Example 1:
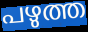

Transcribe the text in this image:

പഴുത്ത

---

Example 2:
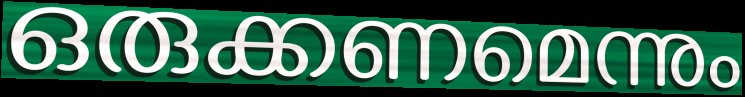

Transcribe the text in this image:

ഒരുക്കണമെന്നും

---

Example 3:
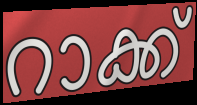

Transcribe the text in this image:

റാക്ക്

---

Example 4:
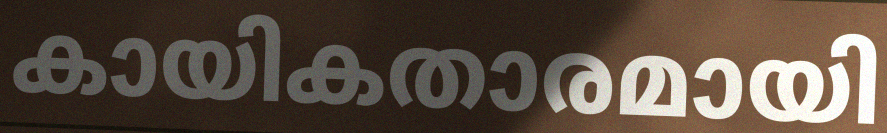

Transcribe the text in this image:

കായികതാരമായി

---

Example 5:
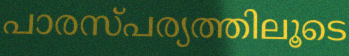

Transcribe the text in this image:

പാരസ്പര്യത്തിലൂടെ